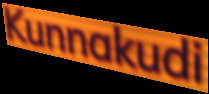
Kunnakudi